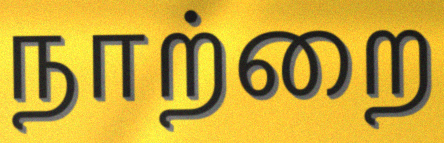
நாற்றை